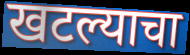
खटल्याचा